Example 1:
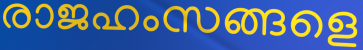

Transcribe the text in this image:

രാജഹംസങ്ങളെ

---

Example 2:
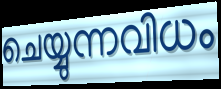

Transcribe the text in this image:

ചെയ്യുന്നവിധം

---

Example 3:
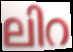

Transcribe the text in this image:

ലിറ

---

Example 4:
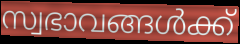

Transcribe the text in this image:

സ്വഭാവങ്ങൾക്ക്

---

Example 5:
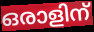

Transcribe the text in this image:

ഒരാളിന്